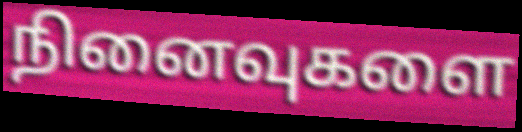
நினைவுகளை